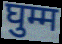
घुम्म